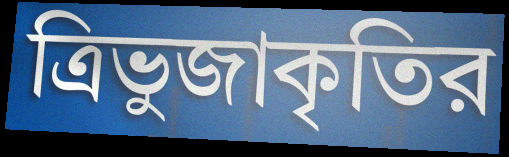
ত্রিভুজাকৃতির